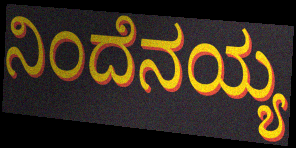
ನಿಂದೆನಯ್ಯ